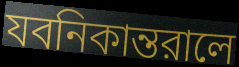
যবনিকান্তরালে